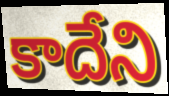
కాదేని